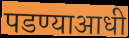
पडण्याआधी